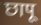
छापू